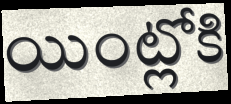
యింట్లోకి